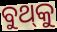
ବୁଥ୍‌କୁ